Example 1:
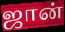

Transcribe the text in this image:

ஜான்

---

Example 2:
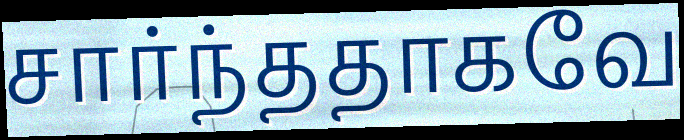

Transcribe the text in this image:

சார்ந்ததாகவே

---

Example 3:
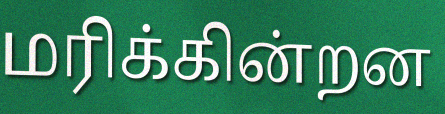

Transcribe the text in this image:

மரிக்கின்றன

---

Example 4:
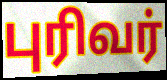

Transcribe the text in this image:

புரிவர்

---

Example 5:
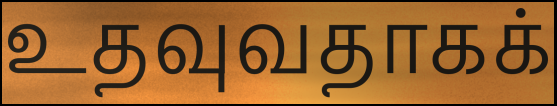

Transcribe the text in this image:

உதவுவதாகக்